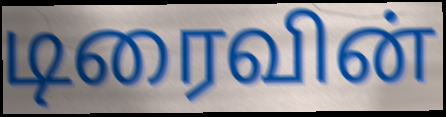
டிரைவின்